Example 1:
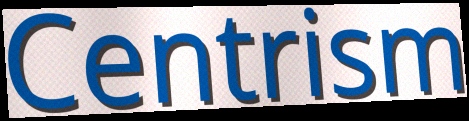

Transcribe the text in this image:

Centrism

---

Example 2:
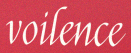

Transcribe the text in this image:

voilence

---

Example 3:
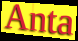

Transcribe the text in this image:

Anta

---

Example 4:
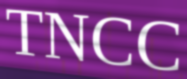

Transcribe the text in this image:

TNCC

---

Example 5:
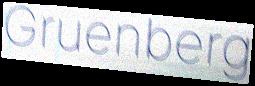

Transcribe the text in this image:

Gruenberg